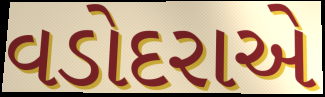
વડોદરાએ